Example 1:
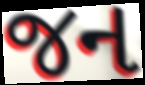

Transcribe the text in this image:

જન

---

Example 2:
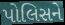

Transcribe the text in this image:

પોલિસને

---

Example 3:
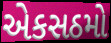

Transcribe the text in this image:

એકસઠમો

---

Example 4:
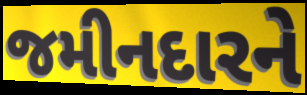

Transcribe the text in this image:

જમીનદારને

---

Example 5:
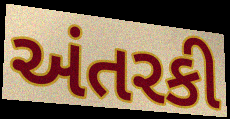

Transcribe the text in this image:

અંતરકી